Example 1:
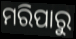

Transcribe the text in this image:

ମରିପାରୁ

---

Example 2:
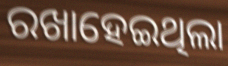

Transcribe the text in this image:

ରଖାହେଇଥିଲା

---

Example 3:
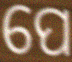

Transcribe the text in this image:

ପେ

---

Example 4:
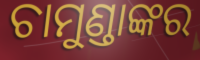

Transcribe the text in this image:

ଚାମୁଣ୍ଡାଙ୍କର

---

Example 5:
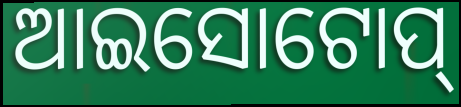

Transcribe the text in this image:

ଆଇସୋଟୋପ୍